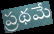
ప్రథమే